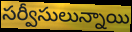
సర్వీసులున్నాయి